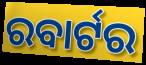
ରବାର୍ଟର